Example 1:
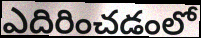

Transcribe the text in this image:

ఎదిరించడంలో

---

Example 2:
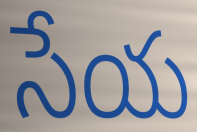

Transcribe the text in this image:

సేయ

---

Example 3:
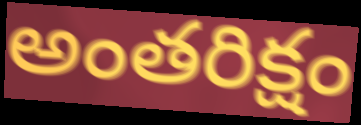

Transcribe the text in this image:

అంతరిక్షం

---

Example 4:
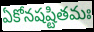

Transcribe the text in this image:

ఏకోనషష్టితమః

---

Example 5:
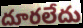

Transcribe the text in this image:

దూరలేదు